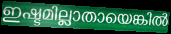
ഇഷ്ടമില്ലാതായെങ്കിൽ